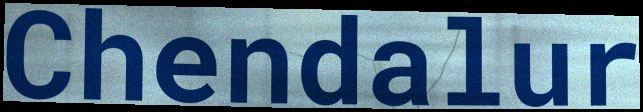
Chendalur